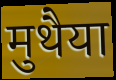
मुथैया